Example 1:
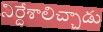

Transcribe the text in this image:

నిర్దేశాలిచ్చాడు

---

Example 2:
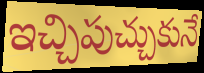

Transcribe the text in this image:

ఇచ్చిపుచ్చుకునే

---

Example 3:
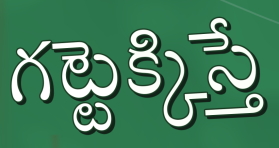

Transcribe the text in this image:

గట్టెక్కిస్తే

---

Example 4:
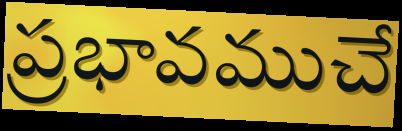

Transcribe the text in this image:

ప్రభావముచే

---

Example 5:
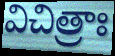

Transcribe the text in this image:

విచిత్రాః